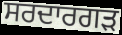
ਸਰਦਾਰਗੜ